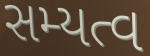
સમ્યત્વ